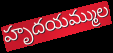
హృదయమ్ముల